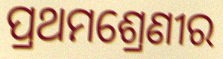
ପ୍ରଥମଶ୍ରେଣୀର